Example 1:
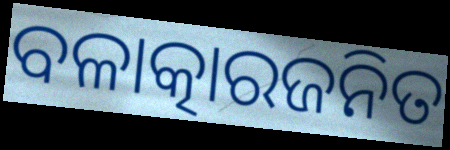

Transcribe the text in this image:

ବଳାତ୍କାରଜନିତ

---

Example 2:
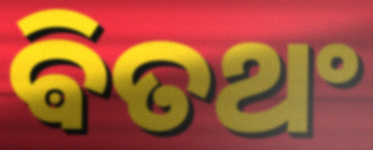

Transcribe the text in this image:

ଵିତଥଂ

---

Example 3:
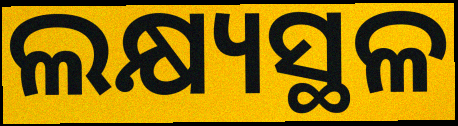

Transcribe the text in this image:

ଲକ୍ଷ୍ୟସ୍ଥଳ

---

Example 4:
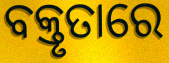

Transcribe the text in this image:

ବକ୍ତୃତାରେ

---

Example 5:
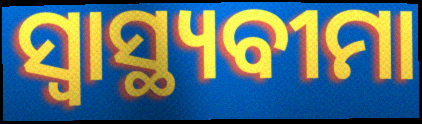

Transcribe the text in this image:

ସ୍ଵାସ୍ଥ୍ୟବୀମା